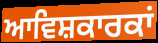
ਆਵਿਸ਼ਕਾਰਕਾਂ